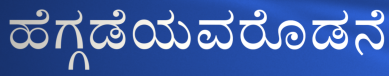
ಹೆಗ್ಗಡೆಯವರೊಡನೆ